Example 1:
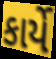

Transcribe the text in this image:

કાર્યે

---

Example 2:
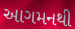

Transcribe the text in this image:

આગમનથી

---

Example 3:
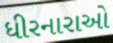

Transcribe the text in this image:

ધીરનારાઓ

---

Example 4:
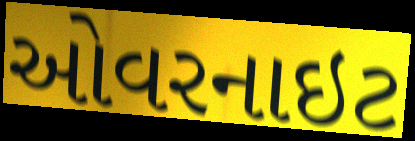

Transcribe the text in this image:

ઓવરનાઇટ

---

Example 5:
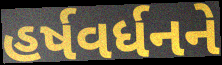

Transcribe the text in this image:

હર્ષવર્ધનને